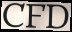
CFD